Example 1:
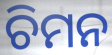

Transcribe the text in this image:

ଚିମନ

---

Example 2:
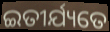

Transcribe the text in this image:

ଇତୀର୍ଯ୍ୟତେ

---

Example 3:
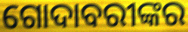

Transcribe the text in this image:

ଗୋଦାବରୀଙ୍କର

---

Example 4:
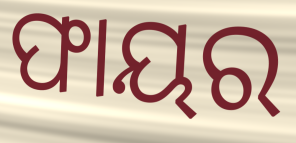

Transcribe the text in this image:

ଫାୟର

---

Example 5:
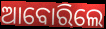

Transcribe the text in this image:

ଆବୋରିଲେ